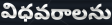
విధవరాలను